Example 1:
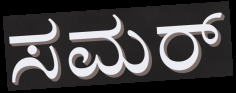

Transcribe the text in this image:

ಸಮರ್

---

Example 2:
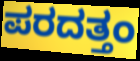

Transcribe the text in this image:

ಪರದತ್ತಂ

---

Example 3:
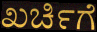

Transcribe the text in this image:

ಖರ್ಚಿಗೆ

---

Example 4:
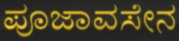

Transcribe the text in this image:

ಪೂಜಾವಸೇನ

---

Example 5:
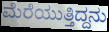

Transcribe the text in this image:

ಮೆರೆಯುತ್ತಿದ್ದನು